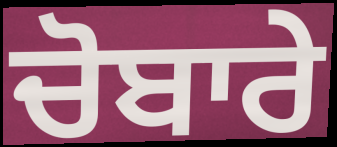
ਚੋਬਾਰੇ